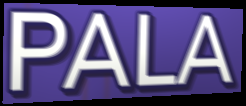
PALA